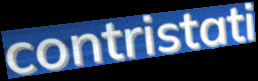
contristati